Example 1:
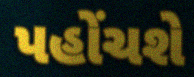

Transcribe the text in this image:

પહોંચશે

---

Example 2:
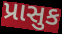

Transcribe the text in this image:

પ્રાસુક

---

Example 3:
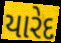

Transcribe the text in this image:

યારેદ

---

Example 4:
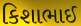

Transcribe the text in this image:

કિશાભાઈ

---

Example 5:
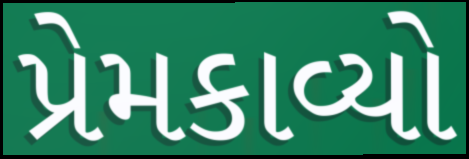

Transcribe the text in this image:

પ્રેમકાવ્યો